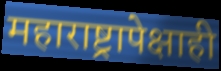
महाराष्ट्रापेक्षाही